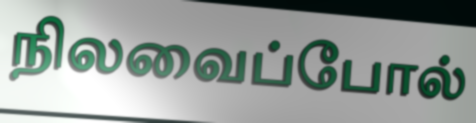
நிலவைப்போல்